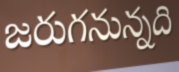
జరుగనున్నది